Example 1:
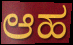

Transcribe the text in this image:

ಆಹ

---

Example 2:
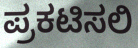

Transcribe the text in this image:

ಪ್ರಕಟಿಸಲಿ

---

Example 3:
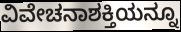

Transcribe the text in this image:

ವಿವೇಚನಾಶಕ್ತಿಯನ್ನೂ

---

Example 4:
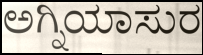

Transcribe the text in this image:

ಅಗ್ನಿಯಾಸುರ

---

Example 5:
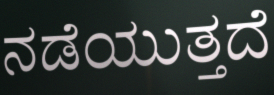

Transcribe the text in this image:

ನಡೆಯುತ್ತದೆ